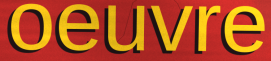
oeuvre